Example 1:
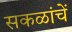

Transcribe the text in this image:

सकळांचें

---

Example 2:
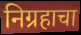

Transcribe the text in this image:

निग्रहाचा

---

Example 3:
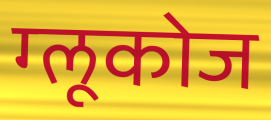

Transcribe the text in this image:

ग्लूकोज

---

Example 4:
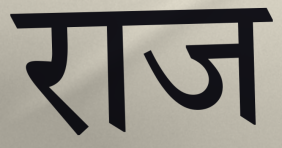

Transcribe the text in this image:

राज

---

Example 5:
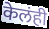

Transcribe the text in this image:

केलंही